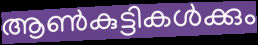
ആൺകുട്ടികൾക്കും